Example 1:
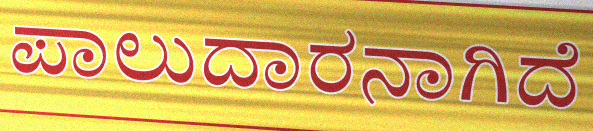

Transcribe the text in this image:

ಪಾಲುದಾರನಾಗಿದೆ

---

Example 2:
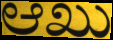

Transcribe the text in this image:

ಆಖು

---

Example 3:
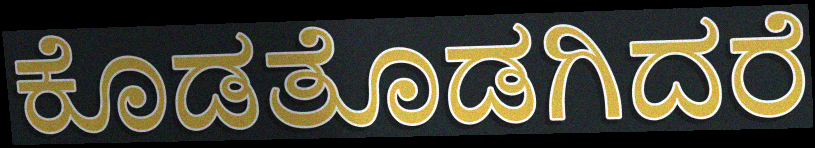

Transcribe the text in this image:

ಕೊಡತೊಡಗಿದರೆ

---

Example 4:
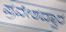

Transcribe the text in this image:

ಪ್ರವೇಶದ್ವಾರ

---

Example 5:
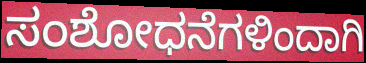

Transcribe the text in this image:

ಸಂಶೋಧನೆಗಳಿಂದಾಗಿ